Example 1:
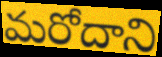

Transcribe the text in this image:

మరోదాని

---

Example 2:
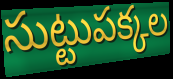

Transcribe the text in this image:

సుట్టుపక్కల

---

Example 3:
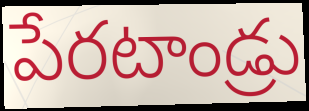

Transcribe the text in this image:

పేరటాండ్రు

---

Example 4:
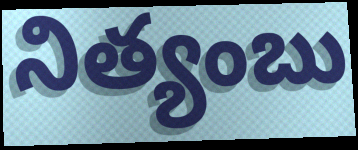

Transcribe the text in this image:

నిత్యంబు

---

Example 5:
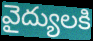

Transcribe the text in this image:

వైద్యులకి